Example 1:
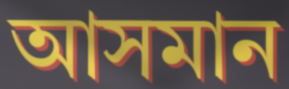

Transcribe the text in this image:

আসমান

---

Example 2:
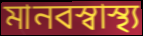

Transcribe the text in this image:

মানবস্বাস্থ্য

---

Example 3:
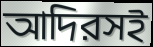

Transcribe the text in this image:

আদিরসই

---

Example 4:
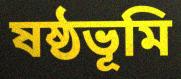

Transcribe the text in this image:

ষষ্ঠভূমি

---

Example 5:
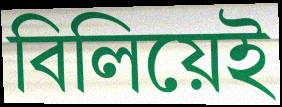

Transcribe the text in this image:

বিলিয়েই